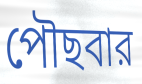
পৌছবার